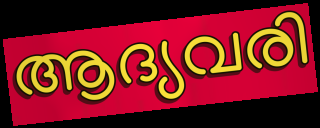
ആദ്യവരി